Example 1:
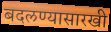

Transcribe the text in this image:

बदलण्यासारखी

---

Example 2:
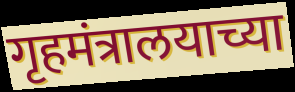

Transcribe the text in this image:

गृहमंत्रालयाच्या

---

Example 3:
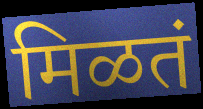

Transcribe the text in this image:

मिळतं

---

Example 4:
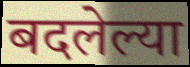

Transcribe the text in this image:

बदलेल्या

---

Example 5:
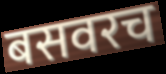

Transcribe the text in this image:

बसवरच